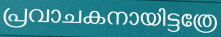
പ്രവാചകനായിട്ടത്രേ